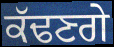
ਕੱਢਣਗੇ